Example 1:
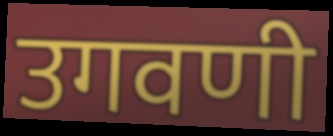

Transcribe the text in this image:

उगवणी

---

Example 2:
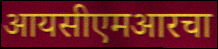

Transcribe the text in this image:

आयसीएमआरचा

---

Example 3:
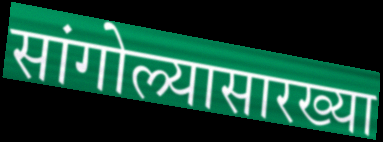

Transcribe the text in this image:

सांगोल्यासारख्या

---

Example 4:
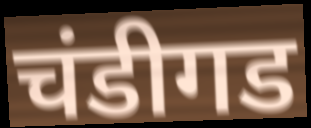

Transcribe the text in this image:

चंडीगड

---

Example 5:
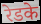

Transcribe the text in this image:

रेडके